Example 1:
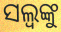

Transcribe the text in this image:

ସଲ୍ୱଙ୍କୁ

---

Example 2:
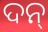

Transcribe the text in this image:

ଦନ୍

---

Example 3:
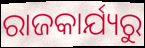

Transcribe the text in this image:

ରାଜକାର୍ଯ୍ୟରୁ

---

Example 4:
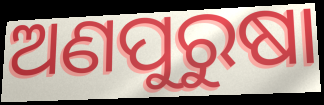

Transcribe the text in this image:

ଅଣପୁରୁଷା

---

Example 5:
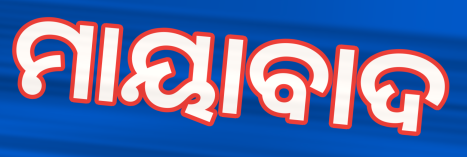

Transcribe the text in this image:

ମାୟାବାଦ